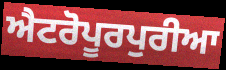
ਐਟਰੋਪੂਰਪੁਰੀਆ